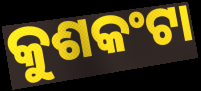
କୁଶକଂଟା